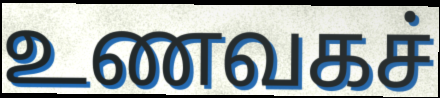
உணவகச்